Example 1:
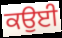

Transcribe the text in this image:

ਕਉਈ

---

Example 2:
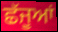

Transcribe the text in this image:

ਛੱਜੂਆਂ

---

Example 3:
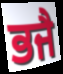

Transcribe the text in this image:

ਭਜੈ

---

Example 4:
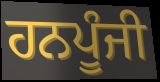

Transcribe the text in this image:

ਹਨਪੂੰਜੀ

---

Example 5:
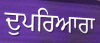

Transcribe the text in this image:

ਦੁਪਰਿਆਰਾ